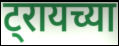
ट्रायच्या